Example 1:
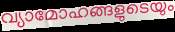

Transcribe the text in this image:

വ്യാമോഹങ്ങളുടെയും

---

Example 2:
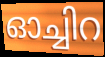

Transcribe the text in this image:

ഓച്ചിറ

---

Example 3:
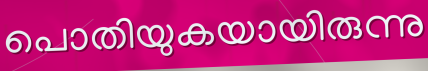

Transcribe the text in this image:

പൊതിയുകയായിരുന്നു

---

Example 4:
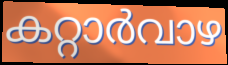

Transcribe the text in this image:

കറ്റാർവാഴ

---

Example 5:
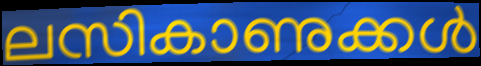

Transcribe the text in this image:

ലസികാണുക്കൾ